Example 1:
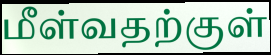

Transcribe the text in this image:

மீள்வதற்குள்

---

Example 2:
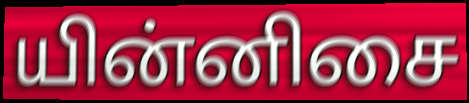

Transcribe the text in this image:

யின்னிசை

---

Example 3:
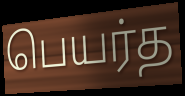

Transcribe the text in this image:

பெயர்த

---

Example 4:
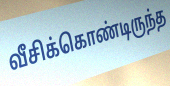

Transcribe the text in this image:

வீசிக்கொண்டிருந்த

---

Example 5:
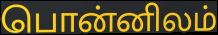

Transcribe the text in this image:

பொன்னிலம்